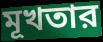
মূখতার